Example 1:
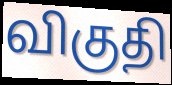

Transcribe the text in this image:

விகுதி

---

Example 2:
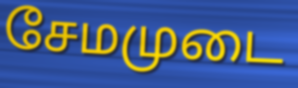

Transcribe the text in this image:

சேமமுடை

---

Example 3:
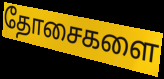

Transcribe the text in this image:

தோசைகளை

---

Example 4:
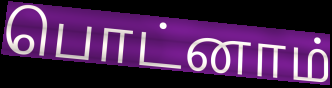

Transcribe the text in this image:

பொட்னாம்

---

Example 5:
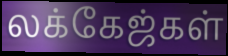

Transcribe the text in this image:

லக்கேஜ்கள்